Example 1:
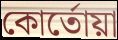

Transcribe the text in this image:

কোর্তোয়া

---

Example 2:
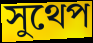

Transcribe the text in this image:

সুথেপ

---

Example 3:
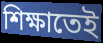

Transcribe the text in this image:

শিক্ষাতেই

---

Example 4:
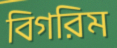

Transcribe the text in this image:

বিগরিম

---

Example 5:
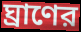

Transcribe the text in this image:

ঘ্রাণের